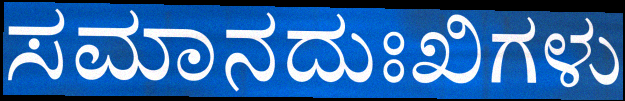
ಸಮಾನದುಃಖಿಗಳು